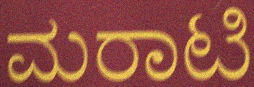
ಮರಾಟಿ